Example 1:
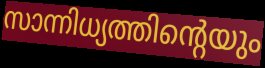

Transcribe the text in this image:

സാന്നിധ്യത്തിന്റെയും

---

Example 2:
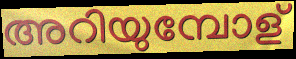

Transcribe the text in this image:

അറിയുമ്പോള്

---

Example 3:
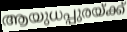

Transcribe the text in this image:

ആയുധപ്പുരയ്ക്ക്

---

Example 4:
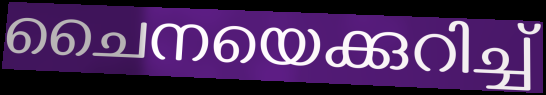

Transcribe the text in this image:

ചൈനയെക്കുറിച്ച്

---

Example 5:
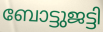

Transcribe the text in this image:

ബോട്ടുജട്ടി